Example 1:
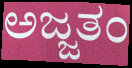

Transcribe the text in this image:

ಅಜ್ಜತಂ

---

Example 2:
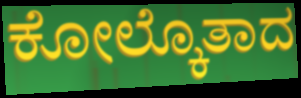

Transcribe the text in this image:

ಕೋಲ್ಕೊತಾದ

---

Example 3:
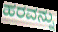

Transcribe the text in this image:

ಹರವನ್ನು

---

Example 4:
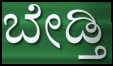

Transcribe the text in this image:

ಬೇಡ್ತಿ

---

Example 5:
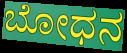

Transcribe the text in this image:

ಬೋಧನ